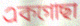
একগোছা